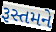
રૂસ્તમને